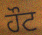
ਹੌਟ